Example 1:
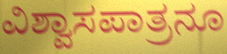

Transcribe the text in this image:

ವಿಶ್ವಾಸಪಾತ್ರನೂ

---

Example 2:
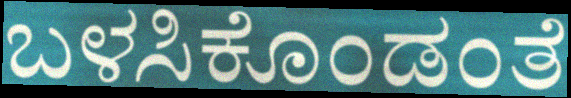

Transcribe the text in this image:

ಬಳಸಿಕೊಂಡಂತೆ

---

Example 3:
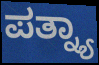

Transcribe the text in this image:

ಪತ್ನ್ಯಾ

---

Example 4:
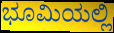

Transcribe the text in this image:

ಭೂಮಿಯಲ್ಲಿ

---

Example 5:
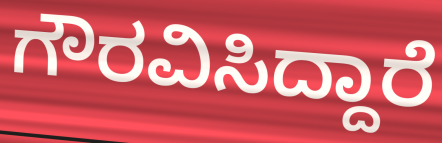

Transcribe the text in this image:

ಗೌರವಿಸಿದ್ದಾರೆ